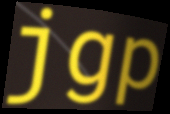
jgp